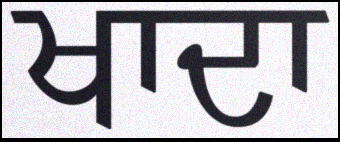
ਖਾਦਾ